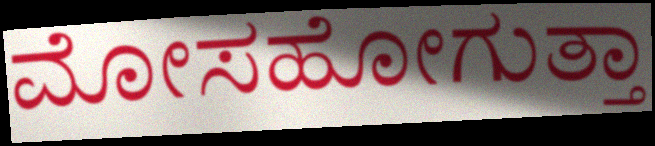
ಮೋಸಹೋಗುತ್ತಾ